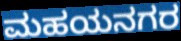
ಮಹಯನಗರ